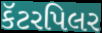
કૅટરપિલર